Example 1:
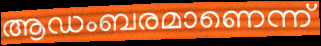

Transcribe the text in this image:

ആഡംബരമാണെന്ന്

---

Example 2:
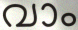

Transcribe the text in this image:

വാം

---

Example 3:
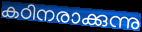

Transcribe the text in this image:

കഠിനരാക്കുന്നു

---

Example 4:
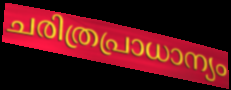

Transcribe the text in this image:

ചരിത്രപ്രാധാന്യം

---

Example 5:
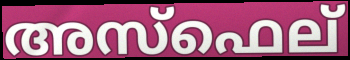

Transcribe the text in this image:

അസ്ഫെല്